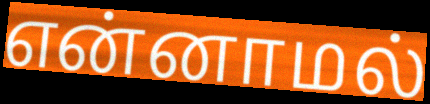
என்னாமல்